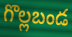
గొల్లబండ